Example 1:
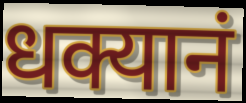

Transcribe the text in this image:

धक्यानं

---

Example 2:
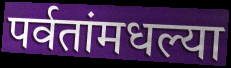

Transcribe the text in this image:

पर्वतांमधल्या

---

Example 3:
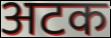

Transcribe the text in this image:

अटक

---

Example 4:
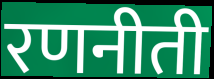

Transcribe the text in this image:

रणनीती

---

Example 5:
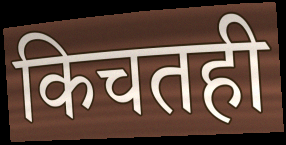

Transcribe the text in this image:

किचतही